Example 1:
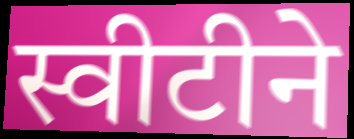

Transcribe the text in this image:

स्वीटीने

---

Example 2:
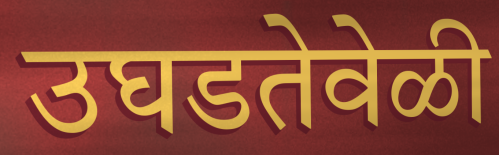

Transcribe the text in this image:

उघडतेवेळी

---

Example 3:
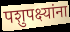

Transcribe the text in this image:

पशुपक्ष्यांना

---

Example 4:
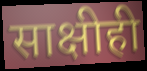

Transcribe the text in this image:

साक्षीही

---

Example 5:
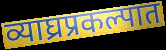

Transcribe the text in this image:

व्याघ्रप्रकल्पात